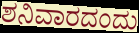
ಶನಿವಾರದಂದು